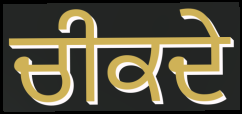
ਚੀਕਦੇ